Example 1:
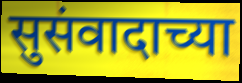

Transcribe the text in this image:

सुसंवादाच्या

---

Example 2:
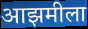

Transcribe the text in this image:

आझमीला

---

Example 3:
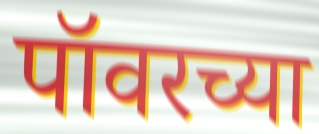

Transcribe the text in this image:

पॉवरच्या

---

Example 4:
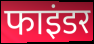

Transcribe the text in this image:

फाइंडर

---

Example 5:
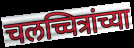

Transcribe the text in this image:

चलच्चित्रांच्या